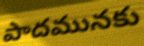
పాదమునకు